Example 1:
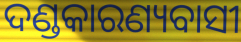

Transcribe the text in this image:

ଦଣ୍ଡକାରଣ୍ୟବାସୀ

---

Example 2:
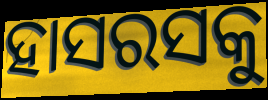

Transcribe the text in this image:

ହାସରସକୁ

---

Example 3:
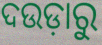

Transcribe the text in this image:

ଦଉଡ଼ାରୁ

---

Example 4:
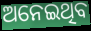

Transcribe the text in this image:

ଅନେଇଥିବ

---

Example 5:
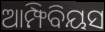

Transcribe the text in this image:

ଆମ୍ଫିବିୟସ